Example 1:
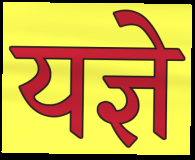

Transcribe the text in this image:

यज्ञे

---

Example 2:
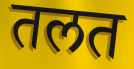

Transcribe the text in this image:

तलत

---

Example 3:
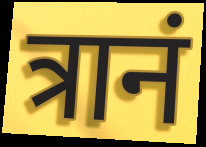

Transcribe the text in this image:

त्रानं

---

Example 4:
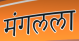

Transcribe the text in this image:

मंगलला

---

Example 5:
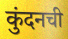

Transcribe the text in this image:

कुंदनची